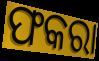
ଫକରା